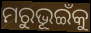
ମରୁଭୂଇଁକୁ